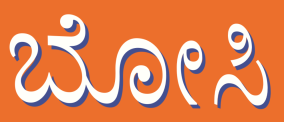
ಬೋಸಿ